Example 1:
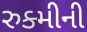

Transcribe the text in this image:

રુક્મીની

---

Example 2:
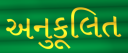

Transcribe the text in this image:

અનુકૂલિત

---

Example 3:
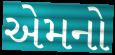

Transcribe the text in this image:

એમનો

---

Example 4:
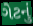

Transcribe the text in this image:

ગેટનું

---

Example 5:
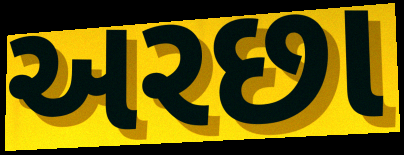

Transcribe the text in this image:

અરછા